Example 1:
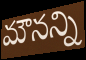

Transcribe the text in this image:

మౌనన్ని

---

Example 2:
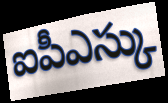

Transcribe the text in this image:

ఐపీఎస్కు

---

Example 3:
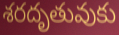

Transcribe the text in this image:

శరదృతువుకు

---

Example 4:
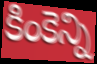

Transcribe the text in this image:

కింకెన్ని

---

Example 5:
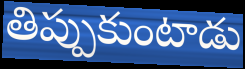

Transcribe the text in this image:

తిప్పుకుంటాడు